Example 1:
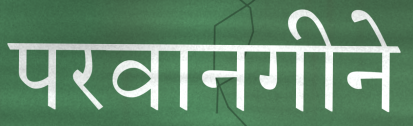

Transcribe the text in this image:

परवानगीने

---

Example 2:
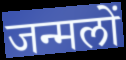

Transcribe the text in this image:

जन्मलों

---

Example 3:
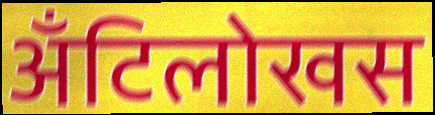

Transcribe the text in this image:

अँटिलोखस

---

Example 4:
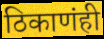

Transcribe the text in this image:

ठिकाणंही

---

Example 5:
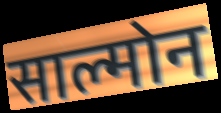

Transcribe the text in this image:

साल्मोन